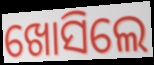
ଖୋସିଲେ